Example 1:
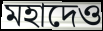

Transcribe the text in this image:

মহাদেও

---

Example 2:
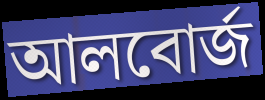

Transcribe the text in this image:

আলবোর্জ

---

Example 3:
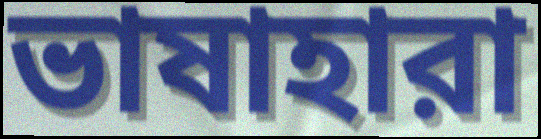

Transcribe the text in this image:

ভাষাহারা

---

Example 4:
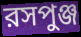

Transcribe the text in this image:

রসপুঞ্জ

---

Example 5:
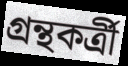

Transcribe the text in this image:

গ্রন্থকর্ত্রী